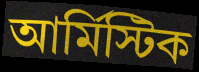
আর্মিস্টিক